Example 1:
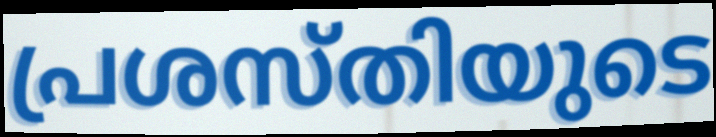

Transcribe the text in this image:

പ്രശസ്തിയുടെ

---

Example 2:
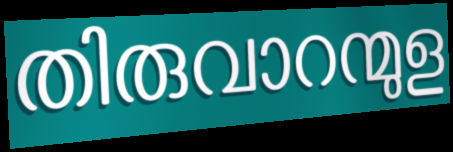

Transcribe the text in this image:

തിരുവാറന്മുള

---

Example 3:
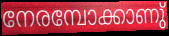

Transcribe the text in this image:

നേരമ്പോക്കാണു്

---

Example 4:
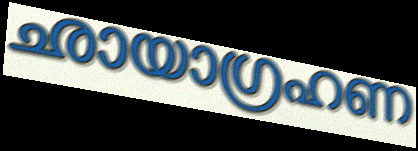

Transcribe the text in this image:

ഛായാഗ്രഹണ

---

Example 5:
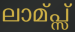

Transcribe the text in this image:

ലാമ്പ്സ്